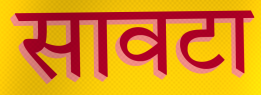
सावटा